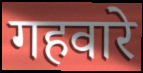
गहवारे